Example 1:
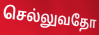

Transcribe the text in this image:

செல்லுவதோ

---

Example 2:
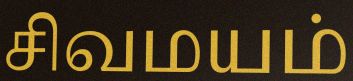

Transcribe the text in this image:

சிவமயம்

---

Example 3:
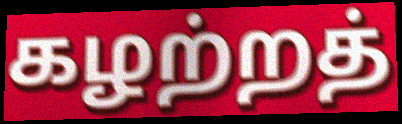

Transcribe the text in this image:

கழற்றத்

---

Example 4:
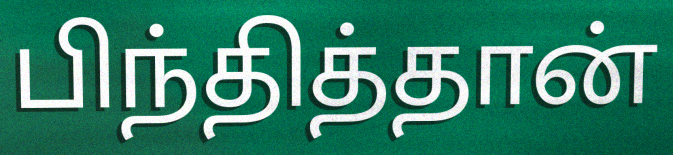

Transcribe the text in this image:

பிந்தித்தான்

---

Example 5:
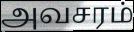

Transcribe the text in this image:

அவசரம்